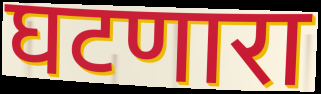
घटणारा